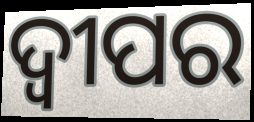
ଦ୍ଵୀପର